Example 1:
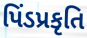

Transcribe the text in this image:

પિંડપ્રકૃતિ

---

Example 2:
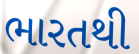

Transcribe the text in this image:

ભારતથી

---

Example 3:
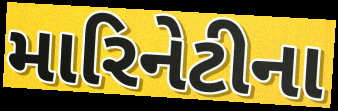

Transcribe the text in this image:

મારિનેટીના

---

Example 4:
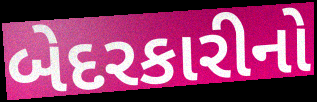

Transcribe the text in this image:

બેદરકારીનો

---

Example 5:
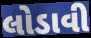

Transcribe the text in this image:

લોડાવી